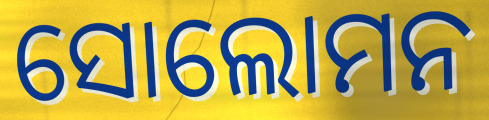
ସୋଲୋମନ